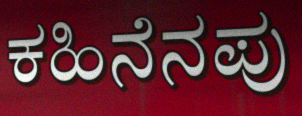
ಕಹಿನೆನಪು